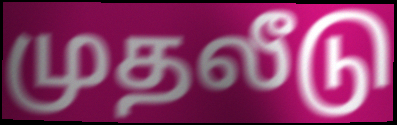
முதலீடு